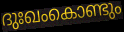
ദുഃഖംകൊണ്ടും